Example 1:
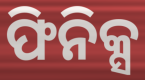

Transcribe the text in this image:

ଫିନିକ୍ସ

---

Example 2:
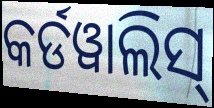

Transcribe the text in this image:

କର୍ଡୱାଲିସ୍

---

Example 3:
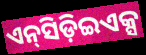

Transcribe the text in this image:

ଏନ୍‍ସିଡ଼ିଇଏକ୍ସ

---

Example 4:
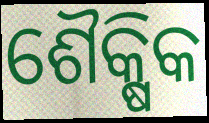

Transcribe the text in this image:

ଶୈକ୍ଷିକ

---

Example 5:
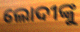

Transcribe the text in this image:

ଲୋଦୀଙ୍କୁ